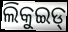
ଲିକୁଇଡ୍